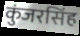
कुंजरसिंह